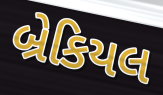
બ્રેકિયલ